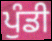
ਪੁੰਡੀ